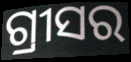
ଗ୍ରୀସର